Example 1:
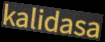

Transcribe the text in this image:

kalidasa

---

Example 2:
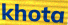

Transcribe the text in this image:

khota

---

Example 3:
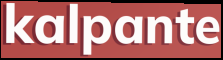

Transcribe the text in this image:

kalpante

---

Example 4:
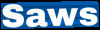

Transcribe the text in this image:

Saws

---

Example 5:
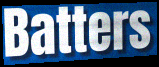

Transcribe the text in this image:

Batters